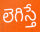
లెగిస్తే